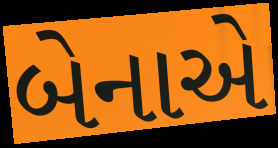
બેનાએ